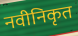
नवीनिकृत